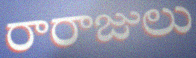
రారాజులు